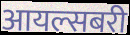
आयल्सबरी